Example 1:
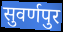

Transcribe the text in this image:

सुवर्णपुर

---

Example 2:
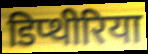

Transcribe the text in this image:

डिप्थीरिया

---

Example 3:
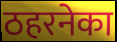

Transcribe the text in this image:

ठहरनेका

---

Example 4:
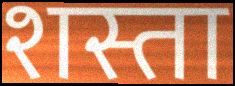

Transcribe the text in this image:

शस्ता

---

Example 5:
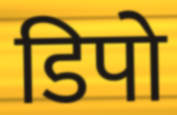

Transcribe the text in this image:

डिपो